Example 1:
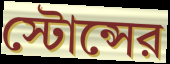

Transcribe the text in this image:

স্টোন্সের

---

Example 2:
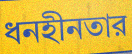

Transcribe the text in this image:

ধনহীনতার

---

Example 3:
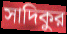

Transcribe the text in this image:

সাদিকুর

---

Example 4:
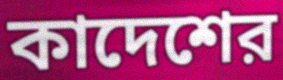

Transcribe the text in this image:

কাদেশের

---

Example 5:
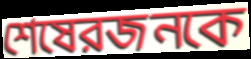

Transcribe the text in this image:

শেষেরজনকে